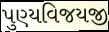
પુણ્યવિજયજી